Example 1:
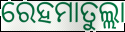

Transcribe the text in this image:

ରେହମାତୁଲ୍ଲା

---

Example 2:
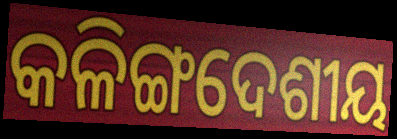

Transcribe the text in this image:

କଳିଙ୍ଗଦେଶୀୟ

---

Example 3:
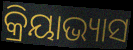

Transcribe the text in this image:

କ୍ରିୟାଭ୍ୟାସ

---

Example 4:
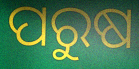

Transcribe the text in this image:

ପରୁଷ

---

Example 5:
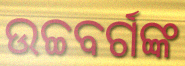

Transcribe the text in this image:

ଉଚ୍ଚବର୍ଗଙ୍କ